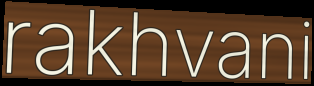
rakhvani